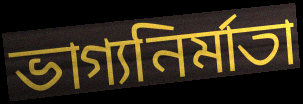
ভাগ্যনির্মাতা